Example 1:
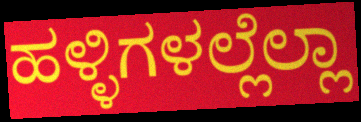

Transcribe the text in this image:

ಹಳ್ಳಿಗಳಲ್ಲೆಲ್ಲಾ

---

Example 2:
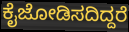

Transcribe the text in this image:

ಕೈಜೋಡಿಸದಿದ್ದರೆ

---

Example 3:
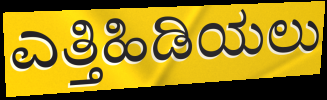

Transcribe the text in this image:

ಎತ್ತಿಹಿಡಿಯಲು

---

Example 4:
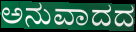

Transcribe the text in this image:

ಅನುವಾದದ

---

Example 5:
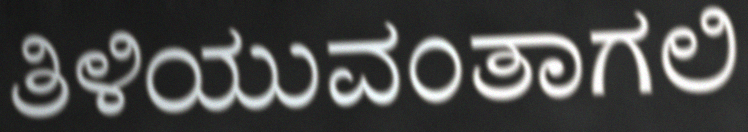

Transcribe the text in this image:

ತಿಳಿಯುವಂತಾಗಲಿ